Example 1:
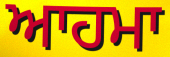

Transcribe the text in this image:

ਆਹਮਾ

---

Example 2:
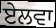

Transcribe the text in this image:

ਏਲਵਾ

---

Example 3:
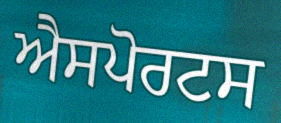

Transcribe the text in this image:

ਐਸਪੋਰਟਸ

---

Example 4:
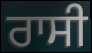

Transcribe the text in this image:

ਰਾਸੀ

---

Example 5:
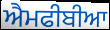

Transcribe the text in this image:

ਐਮਫੀਬੀਆ